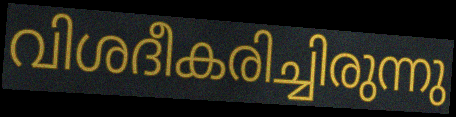
വിശദീകരിച്ചിരുന്നു